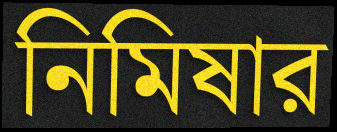
নিমিষার